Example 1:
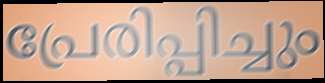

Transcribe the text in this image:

പ്രേരിപ്പിച്ചും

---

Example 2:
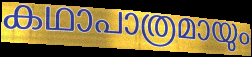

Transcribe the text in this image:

കഥാപാത്രമായും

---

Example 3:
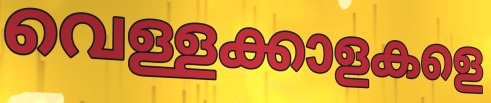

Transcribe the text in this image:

വെള്ളക്കാളകളെ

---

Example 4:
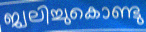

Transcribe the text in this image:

ജ്വലിച്ചുകൊണ്ടു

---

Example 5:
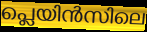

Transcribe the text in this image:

പ്ലെയിൻസിലെ